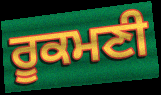
ਰੂਕਮਣੀ